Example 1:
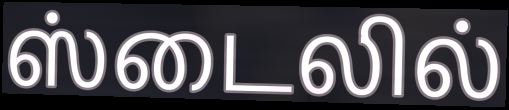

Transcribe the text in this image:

ஸ்டைலில்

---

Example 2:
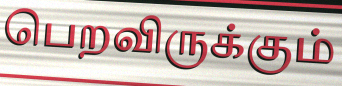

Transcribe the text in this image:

பெறவிருக்கும்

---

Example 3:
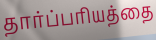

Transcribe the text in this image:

தார்ப்பரியத்தை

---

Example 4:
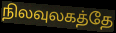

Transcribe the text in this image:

நிலவுலகத்தே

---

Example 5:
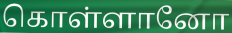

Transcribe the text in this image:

கொள்ளானோ